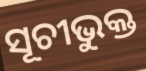
ସୂଚୀଭୁକ୍ତ